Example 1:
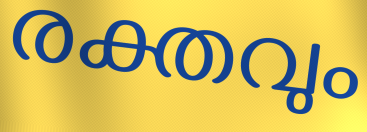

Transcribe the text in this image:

രക്തവും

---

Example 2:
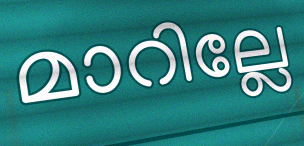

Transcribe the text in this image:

മാറില്ലേ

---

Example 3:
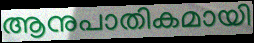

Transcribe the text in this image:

ആനുപാതികമായി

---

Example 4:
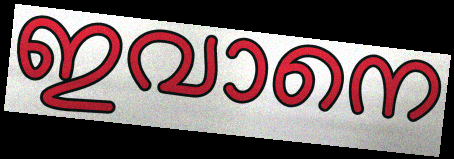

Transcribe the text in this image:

ഇവാനെ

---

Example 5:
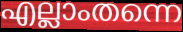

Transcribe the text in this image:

എല്ലാംതന്നെ